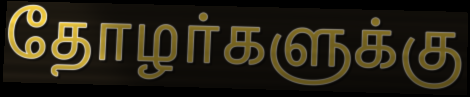
தோழர்களுக்கு